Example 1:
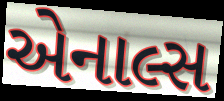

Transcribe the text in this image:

એનાલ્સ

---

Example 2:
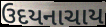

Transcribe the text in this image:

ઉદયનાચાય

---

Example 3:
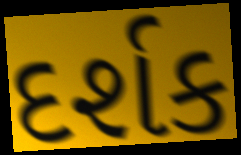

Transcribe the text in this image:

દર્શક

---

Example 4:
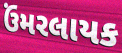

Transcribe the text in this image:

ઉંમરલાયક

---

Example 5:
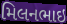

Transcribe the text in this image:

મિલનભાઇ